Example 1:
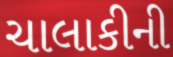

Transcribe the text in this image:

ચાલાકીની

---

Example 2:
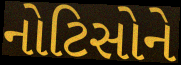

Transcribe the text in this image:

નોટિસોને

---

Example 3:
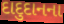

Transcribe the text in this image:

દાદુદાનના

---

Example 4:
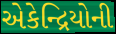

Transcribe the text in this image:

એકેન્દ્રિયોની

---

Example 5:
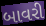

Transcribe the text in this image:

બાવરી